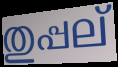
തുപ്പല്